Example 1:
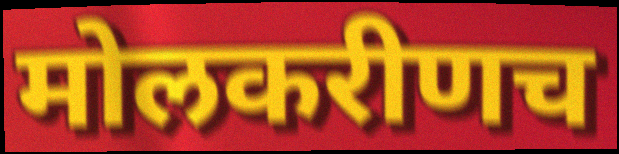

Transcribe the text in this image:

मोलकरीणच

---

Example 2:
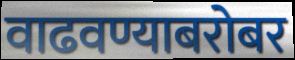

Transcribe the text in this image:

वाढवण्याबरोबर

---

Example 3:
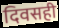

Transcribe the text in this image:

दिवसही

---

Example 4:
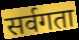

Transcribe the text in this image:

सर्वगता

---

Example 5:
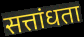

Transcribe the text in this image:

सत्तांधता